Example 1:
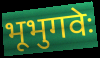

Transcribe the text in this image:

भूभुगवेः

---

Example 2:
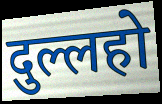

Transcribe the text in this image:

दुल्लहो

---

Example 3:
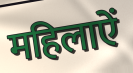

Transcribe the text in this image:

महिलाऐं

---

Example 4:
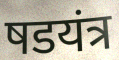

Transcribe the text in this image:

षडयंत्र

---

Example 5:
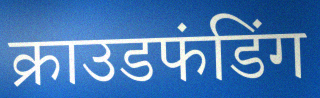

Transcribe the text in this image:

क्राउडफंडिंग